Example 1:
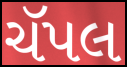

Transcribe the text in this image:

ચૅપલ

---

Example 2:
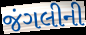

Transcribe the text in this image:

જંગલીની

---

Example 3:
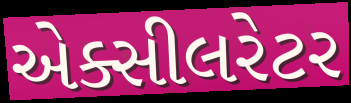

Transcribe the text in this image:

એક્સીલરેટર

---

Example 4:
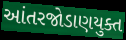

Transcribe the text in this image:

આંતરજોડાણયુક્ત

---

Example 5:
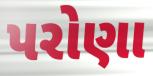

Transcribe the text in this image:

પરોણા